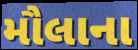
મૌલાના